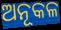
ଅନୂକଳ